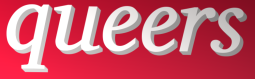
queers